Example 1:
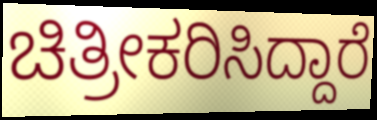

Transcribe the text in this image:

ಚಿತ್ರೀಕರಿಸಿದ್ದಾರೆ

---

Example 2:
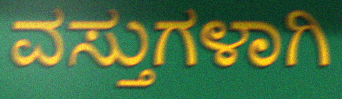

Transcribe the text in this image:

ವಸ್ತುಗಳಾಗಿ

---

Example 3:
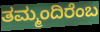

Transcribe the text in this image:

ತಮ್ಮಂದಿರೆಂಬ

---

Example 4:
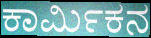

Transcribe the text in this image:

ಕಾರ್ಮಿಕನ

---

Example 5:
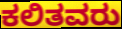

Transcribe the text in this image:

ಕಲಿತವರು